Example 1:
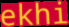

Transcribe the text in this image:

ekhi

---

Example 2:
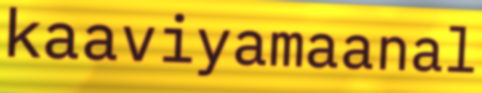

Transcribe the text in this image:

kaaviyamaanal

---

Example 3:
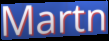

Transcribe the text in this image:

Martn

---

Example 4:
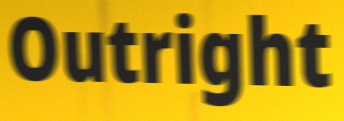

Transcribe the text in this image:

Outright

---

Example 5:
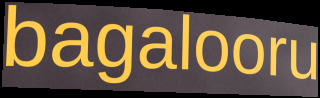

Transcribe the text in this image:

bagalooru